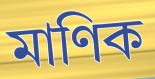
মাণিক